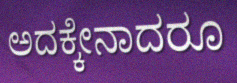
ಅದಕ್ಕೇನಾದರೂ